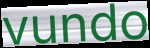
vundo